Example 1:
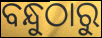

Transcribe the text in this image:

ବନ୍ଧୁଠାରୁ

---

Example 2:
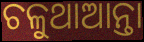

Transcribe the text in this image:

ଚଳୁଥାଆନ୍ତା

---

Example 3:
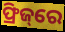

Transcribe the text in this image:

ଫ୍ରିଜ୍‌ରେ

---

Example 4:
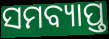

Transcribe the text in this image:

ସମବ୍ୟାପ୍ତ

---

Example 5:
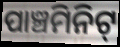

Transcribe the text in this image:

ପାଞ୍ଚମିନିଟ୍